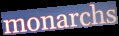
monarchs